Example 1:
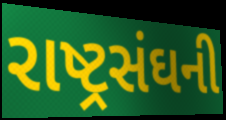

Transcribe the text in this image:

રાષ્ટ્રસંઘની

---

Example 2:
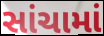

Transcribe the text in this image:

સાંચામાં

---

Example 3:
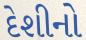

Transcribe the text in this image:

દેશીનો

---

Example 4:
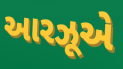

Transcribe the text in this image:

આરઝૂએ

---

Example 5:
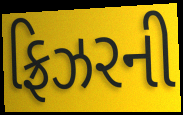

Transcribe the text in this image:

ફ્રિઝરની